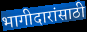
भागीदारांसाठी